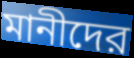
মানীদের